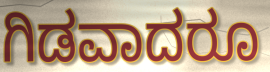
ಗಿಡವಾದರೂ